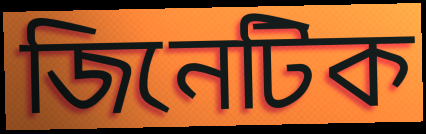
জিনেটিক